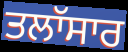
ਤਲਾੱਸਾਰ